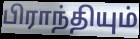
பிராந்தியும்